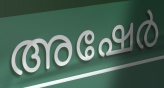
അഷേർ